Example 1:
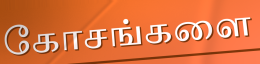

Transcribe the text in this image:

கோசங்களை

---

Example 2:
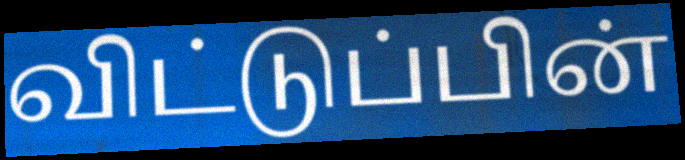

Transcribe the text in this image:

விட்டுப்பின்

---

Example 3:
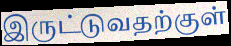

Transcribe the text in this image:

இருட்டுவதற்குள்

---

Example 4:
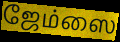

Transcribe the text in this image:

ஜேம்ஸை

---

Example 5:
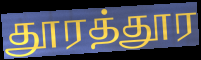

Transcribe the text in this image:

தூரத்தூர